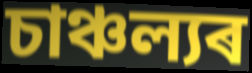
চাঞ্চল্যৰ